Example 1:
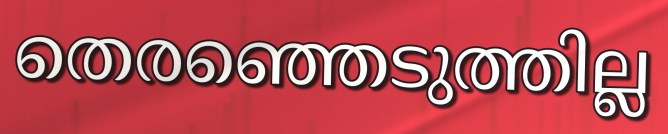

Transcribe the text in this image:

തെരഞ്ഞെടുത്തില്ല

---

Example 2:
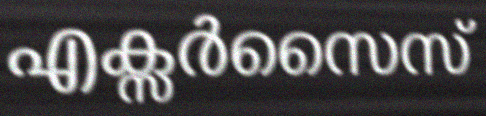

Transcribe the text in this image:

എക്സർസൈസ്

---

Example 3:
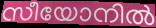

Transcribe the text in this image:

സീയോനിൽ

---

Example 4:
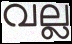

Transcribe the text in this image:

വല്ല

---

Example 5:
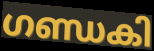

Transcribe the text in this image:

ഗണ്ഡകി